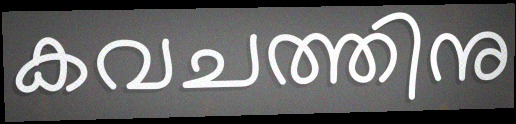
കവചത്തിനു